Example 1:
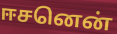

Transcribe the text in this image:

ஈசனென்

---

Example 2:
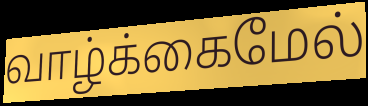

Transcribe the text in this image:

வாழ்க்கைமேல்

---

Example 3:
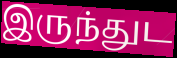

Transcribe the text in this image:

இருந்துட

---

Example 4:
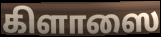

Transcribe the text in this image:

கிளாஸை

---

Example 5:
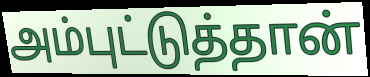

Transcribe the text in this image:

அம்புட்டுத்தான்